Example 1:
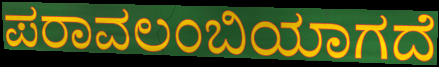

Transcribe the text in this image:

ಪರಾವಲಂಬಿಯಾಗದೆ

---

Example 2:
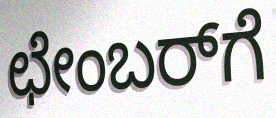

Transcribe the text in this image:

ಛೇಂಬರ್‌ಗೆ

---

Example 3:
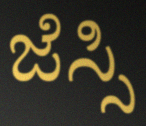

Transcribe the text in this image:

ಜೆಸ್ಸಿ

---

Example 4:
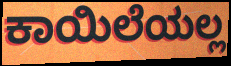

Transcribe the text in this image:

ಕಾಯಿಲೆಯಲ್ಲ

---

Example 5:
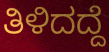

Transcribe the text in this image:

ತಿಳಿದದ್ದೆ